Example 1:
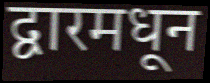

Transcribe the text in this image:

द्वारमधून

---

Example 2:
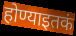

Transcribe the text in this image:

होण्याइतकं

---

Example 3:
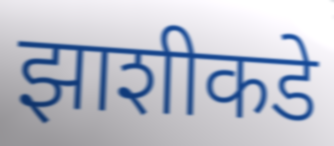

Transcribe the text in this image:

झाशीकडे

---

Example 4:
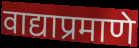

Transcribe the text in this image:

वाद्याप्रमाणे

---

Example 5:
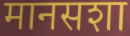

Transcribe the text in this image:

मानसशा